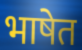
भाषेत